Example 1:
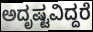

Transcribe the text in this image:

ಅದೃಷ್ಟವಿದ್ದರೆ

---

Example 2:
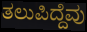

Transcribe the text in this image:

ತಲುಪಿದ್ದೆವು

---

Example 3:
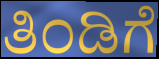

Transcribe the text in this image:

ತಿಂಡಿಗೆ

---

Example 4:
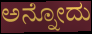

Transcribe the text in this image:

ಅನ್ನೋದು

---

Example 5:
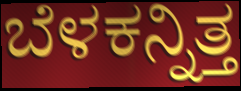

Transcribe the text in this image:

ಬೆಳಕನ್ನಿತ್ತ